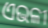
ଏଭଳୀ